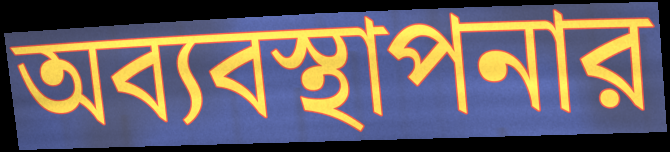
অব্যবস্থাপনার